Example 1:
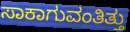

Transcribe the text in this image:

ಸಾಕಾಗುವಂತಿತ್ತು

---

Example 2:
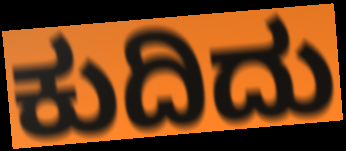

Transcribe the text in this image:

ಕುದಿದು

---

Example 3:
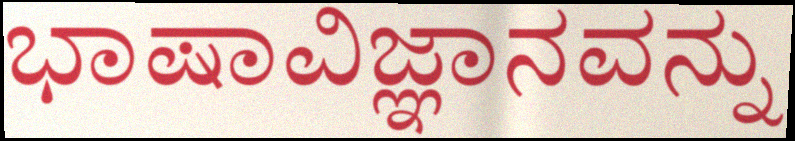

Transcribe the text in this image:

ಭಾಷಾವಿಜ್ಞಾನವನ್ನು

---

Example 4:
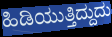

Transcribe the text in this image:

ಹಿಡಿಯುತ್ತಿದ್ದುದು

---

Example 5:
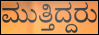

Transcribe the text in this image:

ಮುತ್ತಿದ್ದರು